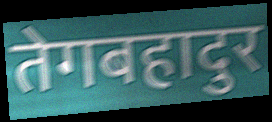
तेगबहादुर